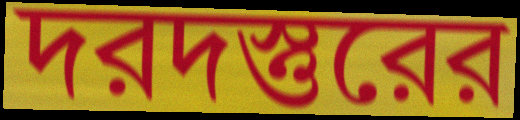
দরদস্তুরের